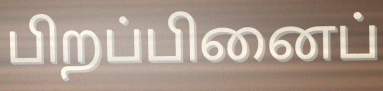
பிறப்பினைப்